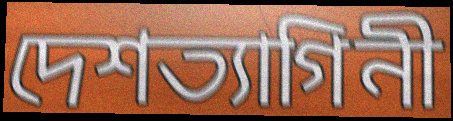
দেশত্যাগিনী